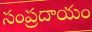
సంప్రదాయం